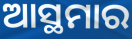
ଆସ୍ଥମାର